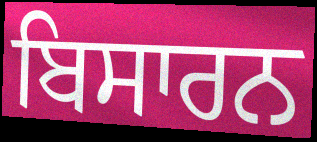
ਬਿਸਾਰਨ